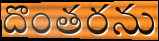
దొంతరను